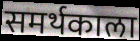
समर्थकाला